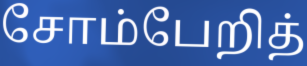
சோம்பேறித்